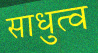
साधुत्व